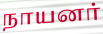
நாயனர்